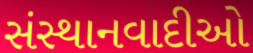
સંસ્થાનવાદીઓ